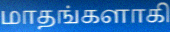
மாதங்களாகி